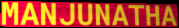
MANJUNATHA